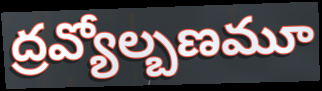
ద్రవ్యోల్బణమూ